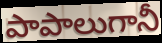
పాపాలుగానీ